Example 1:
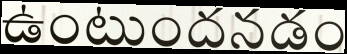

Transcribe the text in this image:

ఉంటుందనడం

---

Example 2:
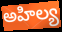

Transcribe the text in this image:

అహిల్య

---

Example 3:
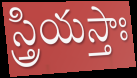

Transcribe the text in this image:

స్త్రియస్తాః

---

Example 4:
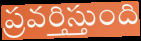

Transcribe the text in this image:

ప్రవర్తిస్తుంది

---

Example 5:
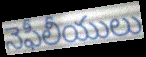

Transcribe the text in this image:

నెఫీలీయులు